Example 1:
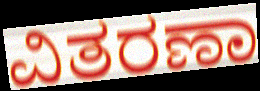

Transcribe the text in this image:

ವಿತರಣಾ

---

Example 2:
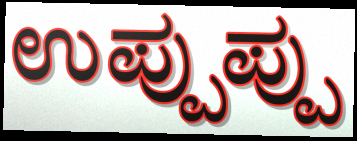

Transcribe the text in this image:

ಉಪ್ಪುಪ್ಪು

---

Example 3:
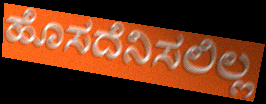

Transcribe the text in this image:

ಹೊಸದೆನಿಸಲಿಲ್ಲ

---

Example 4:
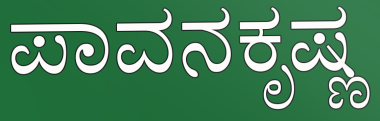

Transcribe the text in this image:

ಪಾವನಕೃಷ್ಣ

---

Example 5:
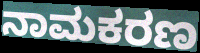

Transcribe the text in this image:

ನಾಮಕರಣ